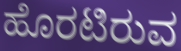
ಹೊರಟಿರುವ